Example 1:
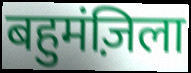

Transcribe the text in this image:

बहुमंज़िला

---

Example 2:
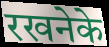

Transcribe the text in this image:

रखनेके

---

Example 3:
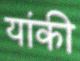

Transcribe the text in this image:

यांकी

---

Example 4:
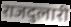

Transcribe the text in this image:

राजदुलारी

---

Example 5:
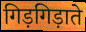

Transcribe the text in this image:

गिड़गिड़ाते